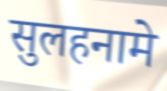
सुलहनामे